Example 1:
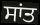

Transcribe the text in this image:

ਸਾਂਤ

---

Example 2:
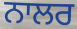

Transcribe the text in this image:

ਨਾਲਰ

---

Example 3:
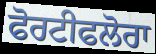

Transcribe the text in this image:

ਫੋਰਟੀਫਲੋਰਾ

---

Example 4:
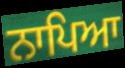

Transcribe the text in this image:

ਨਾਪਿਆ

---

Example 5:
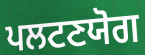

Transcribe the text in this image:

ਪਲਟਣਯੋਗ